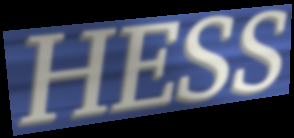
HESS